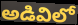
అడివిలో